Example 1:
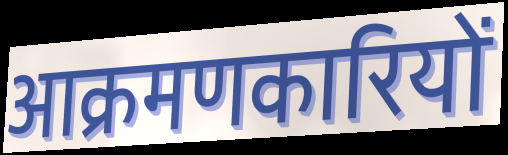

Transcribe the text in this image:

आक्रमणकारियों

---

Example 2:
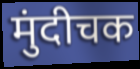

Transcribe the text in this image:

मुंदीचक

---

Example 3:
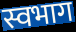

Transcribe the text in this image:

स्वभाग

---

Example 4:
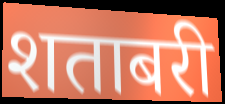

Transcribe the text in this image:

शताबरी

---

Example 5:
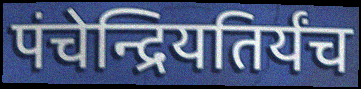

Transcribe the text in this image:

पंचेन्द्रियतिर्यंच